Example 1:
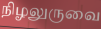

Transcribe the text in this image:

நிழலுருவை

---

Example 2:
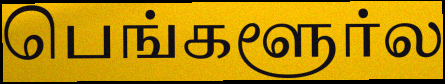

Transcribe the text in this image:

பெங்களூர்ல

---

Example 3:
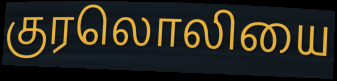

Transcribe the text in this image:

குரலொலியை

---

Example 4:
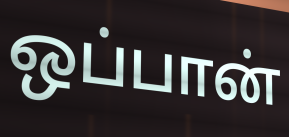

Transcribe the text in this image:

ஒப்பான்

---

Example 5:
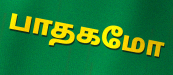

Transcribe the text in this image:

பாதகமோ